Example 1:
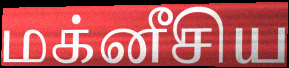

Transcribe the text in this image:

மக்னீசிய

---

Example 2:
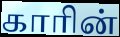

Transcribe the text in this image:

காரின்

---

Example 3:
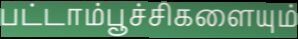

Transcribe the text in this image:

பட்டாம்பூச்சிகளையும்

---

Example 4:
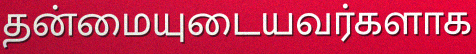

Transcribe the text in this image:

தன்மையுடையவர்களாக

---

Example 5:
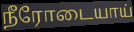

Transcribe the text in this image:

நீரோடையாய்